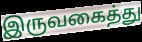
இருவகைத்து